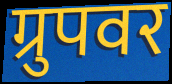
ग्रुपवर